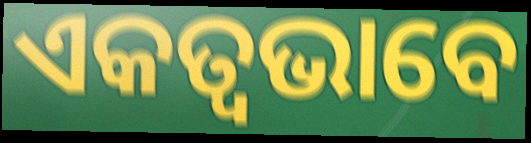
ଏକତ୍ଵଭାବେ